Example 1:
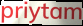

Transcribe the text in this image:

priytam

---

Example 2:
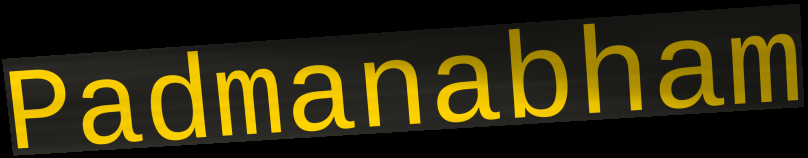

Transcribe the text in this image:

Padmanabham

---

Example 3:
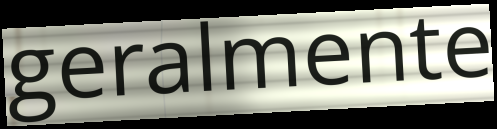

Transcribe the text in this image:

geralmente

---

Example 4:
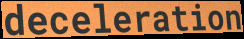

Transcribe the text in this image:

deceleration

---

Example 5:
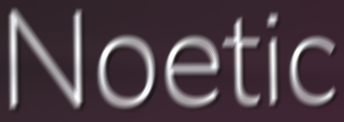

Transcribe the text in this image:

Noetic